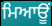
ਮਿਆਊਂ